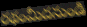
రథంమీదనుండి